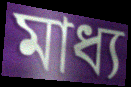
মাধ্য